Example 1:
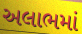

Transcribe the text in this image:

અલાભમાં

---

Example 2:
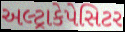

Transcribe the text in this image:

અલ્ટ્રાકેપેસિટર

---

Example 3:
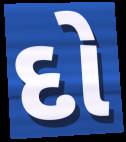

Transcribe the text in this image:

દો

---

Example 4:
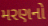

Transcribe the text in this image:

મરણનો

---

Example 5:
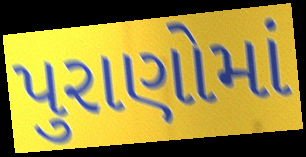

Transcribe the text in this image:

પુરાણોમાં